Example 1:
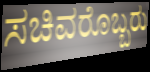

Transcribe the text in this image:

ಸಚಿವರೊಬ್ಬರು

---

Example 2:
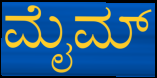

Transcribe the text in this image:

ಮೈಮ್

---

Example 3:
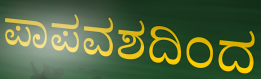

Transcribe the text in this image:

ಪಾಪವಶದಿಂದ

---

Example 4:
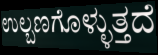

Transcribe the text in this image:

ಉಲ್ಬಣಗೊಳ್ಳುತ್ತದೆ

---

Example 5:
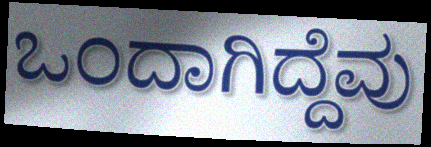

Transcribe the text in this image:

ಒಂದಾಗಿದ್ದೆವು